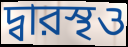
দ্বারস্থও